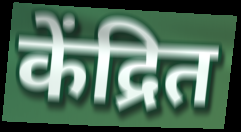
केंद्रित